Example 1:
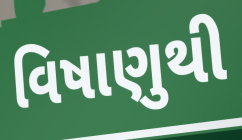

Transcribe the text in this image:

વિષાણુથી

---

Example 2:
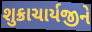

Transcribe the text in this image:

શુક્રાચાર્યજીને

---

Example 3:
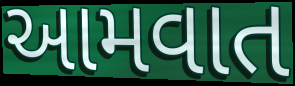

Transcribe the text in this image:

આમવાત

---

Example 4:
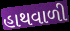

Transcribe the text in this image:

હાથવાળી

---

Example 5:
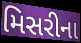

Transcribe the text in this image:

મિસરીના